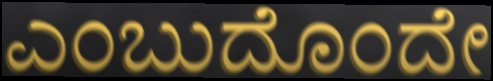
ಎಂಬುದೊಂದೇ